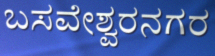
ಬಸವೇಶ್ವರನಗರ